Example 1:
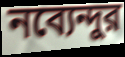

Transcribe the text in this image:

নব্যেন্দুর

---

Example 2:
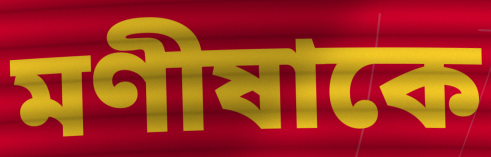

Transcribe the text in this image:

মণীষাকে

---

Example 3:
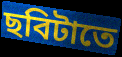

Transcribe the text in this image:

ছবিটাতে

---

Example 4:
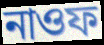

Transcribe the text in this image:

নাওফ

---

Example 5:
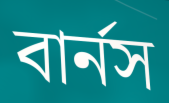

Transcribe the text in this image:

বার্নস